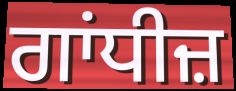
ਗਾਂਧੀਜ਼